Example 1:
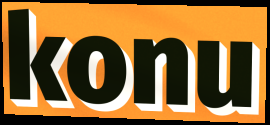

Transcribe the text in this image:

konu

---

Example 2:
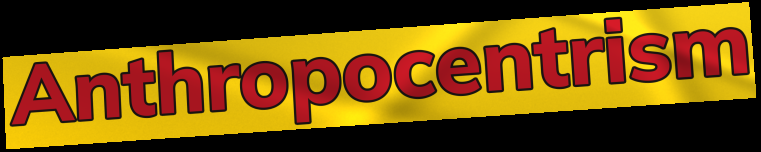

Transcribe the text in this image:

Anthropocentrism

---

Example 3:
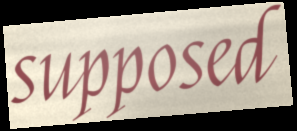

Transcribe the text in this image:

supposed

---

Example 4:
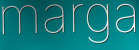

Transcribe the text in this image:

marga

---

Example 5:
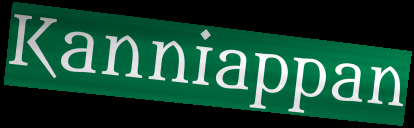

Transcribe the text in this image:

Kanniappan